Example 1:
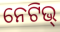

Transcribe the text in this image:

ନେଟିଭ୍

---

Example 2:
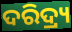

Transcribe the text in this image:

ଦରିଦ୍ର୍ୟ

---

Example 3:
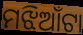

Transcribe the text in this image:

ମଝିଆଁଟା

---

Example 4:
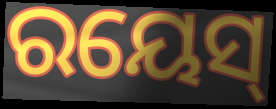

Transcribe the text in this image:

ରୟେସ୍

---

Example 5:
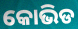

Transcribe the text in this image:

କୋଭିଡ